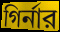
গির্নার